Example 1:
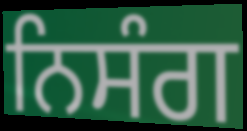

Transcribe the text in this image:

ਨਿਸੰਗ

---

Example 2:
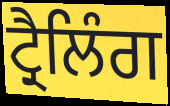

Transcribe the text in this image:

ਟ੍ਰੈਲਿੰਗ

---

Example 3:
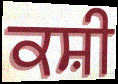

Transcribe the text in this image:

ਕਸ਼ੀ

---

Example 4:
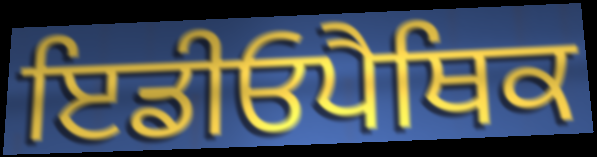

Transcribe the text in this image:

ਇਡੀਓਪੈਥਿਕ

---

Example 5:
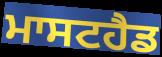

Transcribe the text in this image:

ਮਾਸਟਹੈਡ